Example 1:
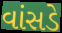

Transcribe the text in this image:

વાંસડે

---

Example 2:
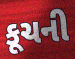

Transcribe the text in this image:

કૂચની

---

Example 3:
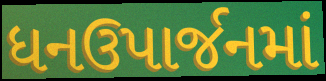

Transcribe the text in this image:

ધનઉપાર્જનમાં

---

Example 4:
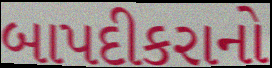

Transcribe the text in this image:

બાપદીકરાનો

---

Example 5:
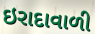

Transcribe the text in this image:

ઇરાદાવાળી